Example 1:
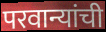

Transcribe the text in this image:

परवान्यांची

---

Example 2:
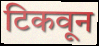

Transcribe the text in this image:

टिकवून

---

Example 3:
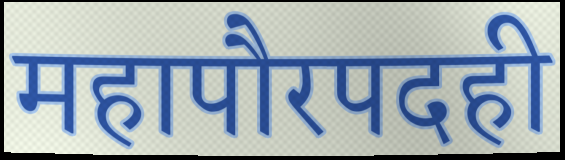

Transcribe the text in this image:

महापौरपदही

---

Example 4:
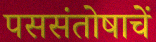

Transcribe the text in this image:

पससंतोषाचें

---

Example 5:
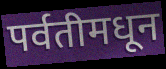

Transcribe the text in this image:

पर्वतीमधून